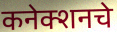
कनेक्शनचे